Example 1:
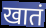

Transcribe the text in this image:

खातं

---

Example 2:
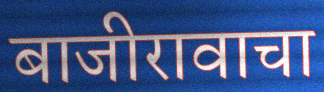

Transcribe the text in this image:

बाजीरावाचा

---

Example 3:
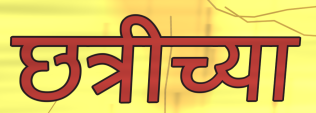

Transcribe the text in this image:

छत्रीच्या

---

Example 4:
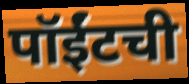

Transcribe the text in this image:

पॉईंटची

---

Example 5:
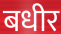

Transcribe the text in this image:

बधीर